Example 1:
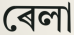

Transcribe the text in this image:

ৰেলা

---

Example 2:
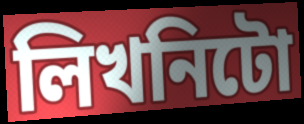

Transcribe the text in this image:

লিখনিটো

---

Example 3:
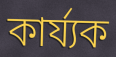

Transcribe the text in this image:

কাৰ্য্যক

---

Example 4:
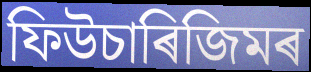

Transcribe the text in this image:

ফিউচাৰিজিমৰ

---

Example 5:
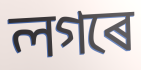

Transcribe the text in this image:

লগৰে